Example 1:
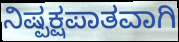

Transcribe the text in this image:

ನಿಷ್ಪಕ್ಷಪಾತವಾಗಿ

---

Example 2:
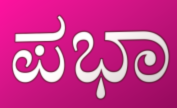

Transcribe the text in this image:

ಪಭಾ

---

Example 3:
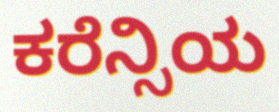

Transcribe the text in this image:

ಕರೆನ್ಸಿಯ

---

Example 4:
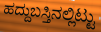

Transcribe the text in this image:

ಹದ್ದುಬಸ್ತಿನಲ್ಲಿಟ್ಟು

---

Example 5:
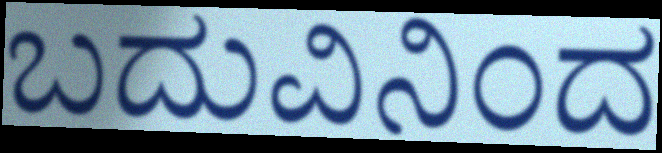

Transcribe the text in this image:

ಬದುವಿನಿಂದ